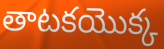
తాటకయొక్క